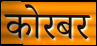
कोरबर